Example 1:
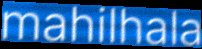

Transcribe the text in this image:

mahilhala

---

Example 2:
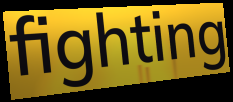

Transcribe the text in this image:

fighting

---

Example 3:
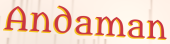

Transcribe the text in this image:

Andaman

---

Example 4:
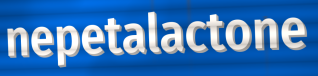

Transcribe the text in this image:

nepetalactone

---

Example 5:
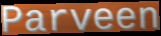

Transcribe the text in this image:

Parveen